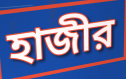
হাজীর